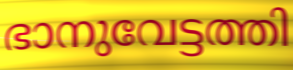
ഭാനുവേട്ടത്തി